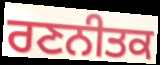
ਰਣਨੀਤਕ